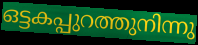
ഒട്ടകപ്പുറത്തുനിന്നു